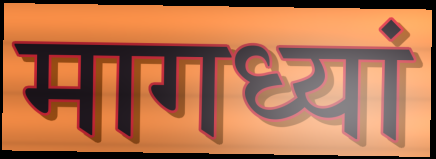
मागध्यां